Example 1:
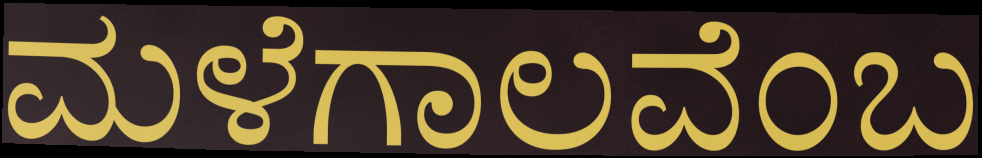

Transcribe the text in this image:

ಮಳೆಗಾಲವೆಂಬ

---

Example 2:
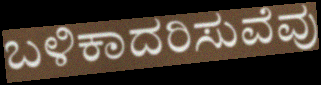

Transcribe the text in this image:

ಬಳಿಕಾದರಿಸುವೆವು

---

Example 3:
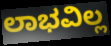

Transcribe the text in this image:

ಲಾಭವಿಲ್ಲ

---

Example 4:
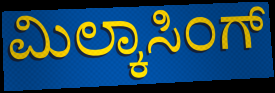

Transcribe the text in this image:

ಮಿಲ್ಕಾಸಿಂಗ್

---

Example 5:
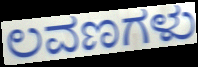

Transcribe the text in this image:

ಲವಣಗಳು